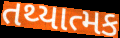
તથ્યાત્મક